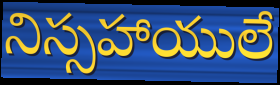
నిస్సహాయులే